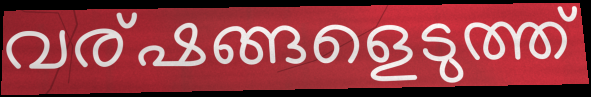
വര്ഷങ്ങളെടുത്ത്